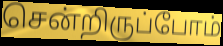
சென்றிருப்போம்